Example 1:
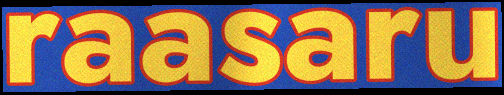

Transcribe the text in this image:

raasaru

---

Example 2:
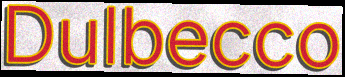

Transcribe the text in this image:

Dulbecco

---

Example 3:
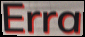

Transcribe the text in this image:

Erra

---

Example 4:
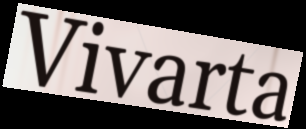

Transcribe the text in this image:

Vivarta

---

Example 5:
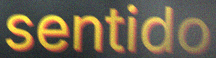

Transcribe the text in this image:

sentido